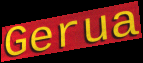
Gerua